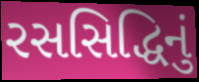
રસસિદ્ધિનું